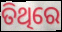
ତିଥିରେ